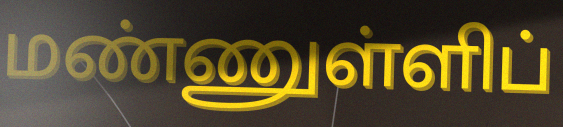
மண்ணுள்ளிப்